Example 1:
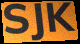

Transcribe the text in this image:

SJK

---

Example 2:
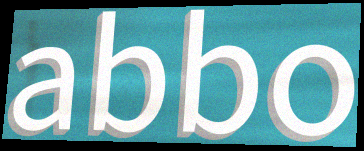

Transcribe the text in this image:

abbo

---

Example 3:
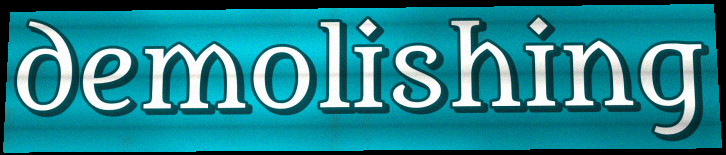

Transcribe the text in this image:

demolishing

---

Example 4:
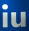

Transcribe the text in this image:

iu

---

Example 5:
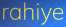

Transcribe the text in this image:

rahiye